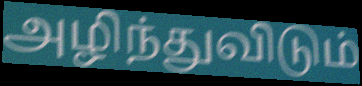
அழிந்துவிடும்